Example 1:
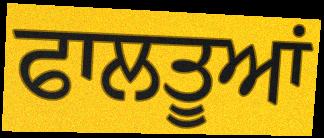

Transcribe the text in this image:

ਫਾਲਤੂਆਂ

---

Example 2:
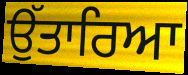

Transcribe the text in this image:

ਉੱਤਾਰਿਆ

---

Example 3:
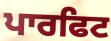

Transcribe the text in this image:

ਪਾਰਫਿਟ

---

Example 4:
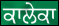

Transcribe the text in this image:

ਕਾਲੇਕਾ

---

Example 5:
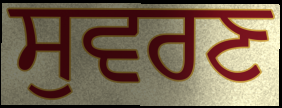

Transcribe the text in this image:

ਸੁਵਰਣ